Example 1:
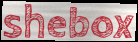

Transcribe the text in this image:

shebox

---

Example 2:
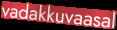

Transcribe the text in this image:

vadakkuvaasal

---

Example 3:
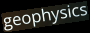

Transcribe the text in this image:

geophysics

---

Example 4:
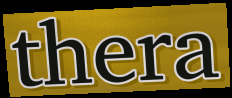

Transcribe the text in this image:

thera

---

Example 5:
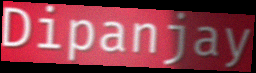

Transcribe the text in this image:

Dipanjay